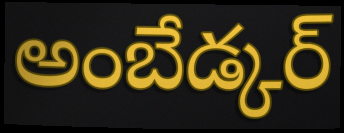
అంబేడ్కర్